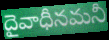
దైవాధీనమనీ